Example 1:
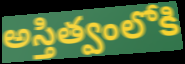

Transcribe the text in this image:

అస్తిత్వంలోకి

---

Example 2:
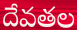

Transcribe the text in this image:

దేవతల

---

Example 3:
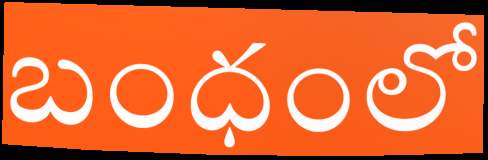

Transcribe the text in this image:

బంధంలో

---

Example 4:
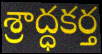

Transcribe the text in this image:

శ్రాద్ధకర్త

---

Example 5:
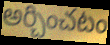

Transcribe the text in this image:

అర్చించటం